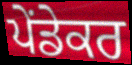
ਪੇਂਡੇਕਰ